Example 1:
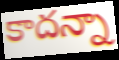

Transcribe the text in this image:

కాదన్నా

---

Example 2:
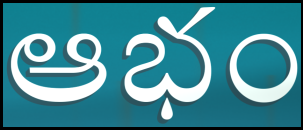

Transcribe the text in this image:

ఆభం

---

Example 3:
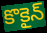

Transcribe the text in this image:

కొకైన్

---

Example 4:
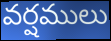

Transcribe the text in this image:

వర్షములు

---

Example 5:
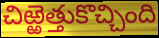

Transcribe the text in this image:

చిఱ్ఱెత్తుకొచ్చింది